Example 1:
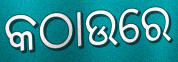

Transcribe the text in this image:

କଠାଉରେ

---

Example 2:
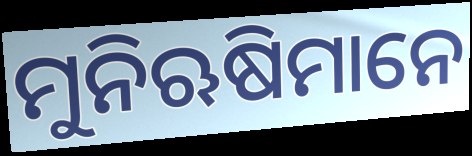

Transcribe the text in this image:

ମୁନିଋଷିମାନେ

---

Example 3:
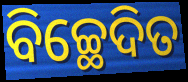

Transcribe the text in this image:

ବିଚ୍ଛେଦିତ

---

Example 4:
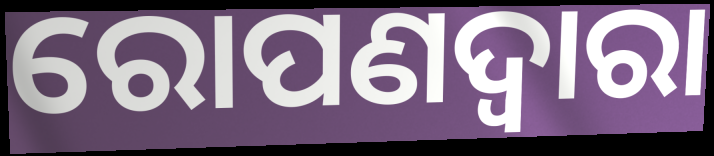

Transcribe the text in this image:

ରୋପଣଦ୍ୱାରା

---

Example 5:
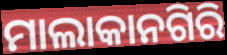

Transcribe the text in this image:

ମାଲାକାନଗିରି